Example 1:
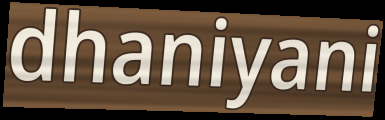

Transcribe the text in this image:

dhaniyani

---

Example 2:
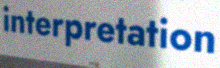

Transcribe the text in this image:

interpretation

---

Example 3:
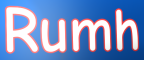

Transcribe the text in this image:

Rumh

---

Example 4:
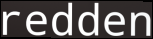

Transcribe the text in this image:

redden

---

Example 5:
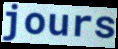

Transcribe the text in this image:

jours